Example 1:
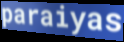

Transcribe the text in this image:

paraiyas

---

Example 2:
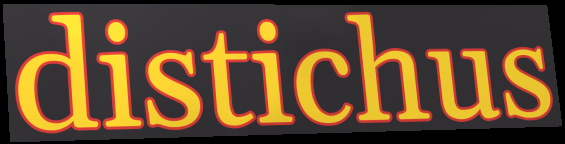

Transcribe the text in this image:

distichus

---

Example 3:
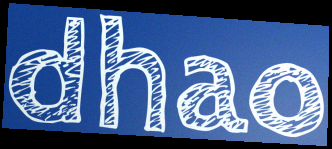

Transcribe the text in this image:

dhao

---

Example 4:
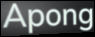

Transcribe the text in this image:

Apong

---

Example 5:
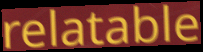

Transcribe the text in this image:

relatable